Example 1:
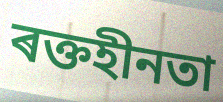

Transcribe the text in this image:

ৰক্তহীনতা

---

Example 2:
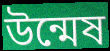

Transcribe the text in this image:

উন্মেষ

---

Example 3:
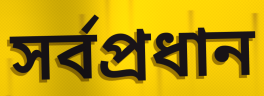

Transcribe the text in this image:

সৰ্বপ্ৰধান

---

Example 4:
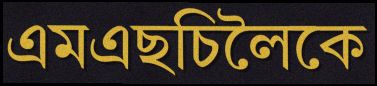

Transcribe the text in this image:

এমএছচিলৈকে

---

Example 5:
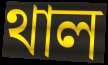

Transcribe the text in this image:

থাল